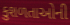
કુશળતાઓની